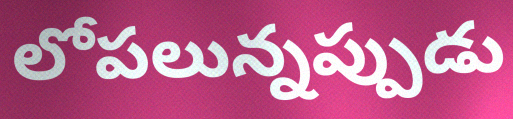
లోపలున్నప్పుడు